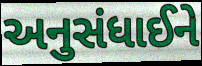
અનુસંધાઈને